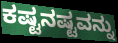
ಕಷ್ಟನಷ್ಟವನ್ನು